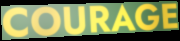
COURAGE